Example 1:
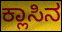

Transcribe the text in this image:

ಕ್ಲಾಸಿನ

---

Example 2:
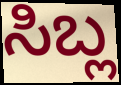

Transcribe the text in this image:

ಸಿಬ್ಲ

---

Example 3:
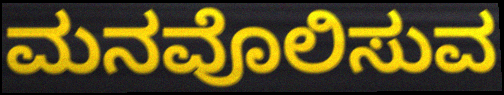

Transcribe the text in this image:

ಮನವೊಲಿಸುವ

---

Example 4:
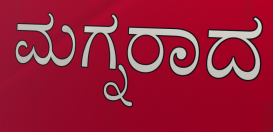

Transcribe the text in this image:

ಮಗ್ನರಾದ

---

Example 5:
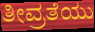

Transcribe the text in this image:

ತೀವ್ರತೆಯು